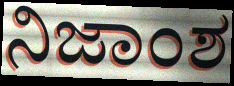
ನಿಜಾಂಶ